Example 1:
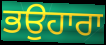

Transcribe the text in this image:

ਭਉਹਾਰਾ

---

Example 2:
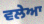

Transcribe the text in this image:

ਵਲੇਆ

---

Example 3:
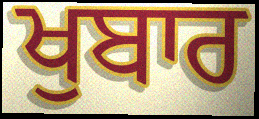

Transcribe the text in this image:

ਖੁਬਾਰ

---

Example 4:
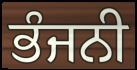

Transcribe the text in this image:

ਭੰਜਨੀ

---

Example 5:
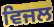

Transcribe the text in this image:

ਵਿਜਲ